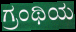
ಗ್ರಂಥಿಯ